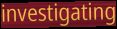
investigating